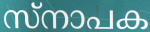
സ്നാപക